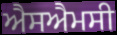
ਐਸਐਮਸੀ